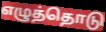
எழுத்தொடு